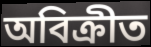
অবিক্রীত